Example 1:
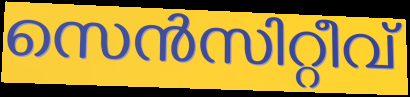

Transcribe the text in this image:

സെൻസിറ്റീവ്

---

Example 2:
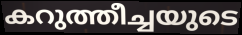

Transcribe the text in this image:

കറുത്തീച്ചയുടെ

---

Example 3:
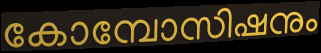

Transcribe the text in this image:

കോമ്പോസിഷനും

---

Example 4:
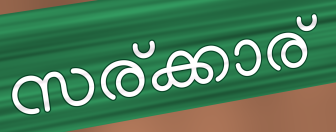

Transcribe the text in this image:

സര്ക്കാര്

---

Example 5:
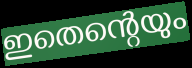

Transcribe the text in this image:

ഇതെന്റെയും